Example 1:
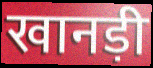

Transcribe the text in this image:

खानड़ी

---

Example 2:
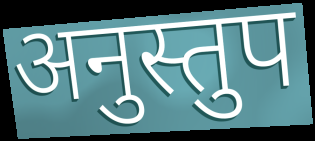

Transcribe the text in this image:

अनुस्तुप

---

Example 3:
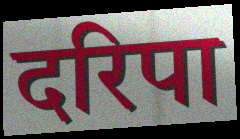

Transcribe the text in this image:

दरिपा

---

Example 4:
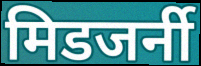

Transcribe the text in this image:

मिडजर्नी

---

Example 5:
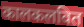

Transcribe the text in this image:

कालकलवित